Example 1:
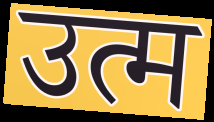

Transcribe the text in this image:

उत्म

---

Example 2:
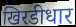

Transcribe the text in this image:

खिरडीधार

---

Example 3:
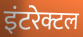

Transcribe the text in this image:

इंटरेक्टल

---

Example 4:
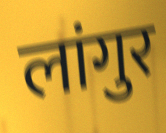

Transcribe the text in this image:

लांगुर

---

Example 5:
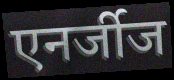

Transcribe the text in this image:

एनर्जीज